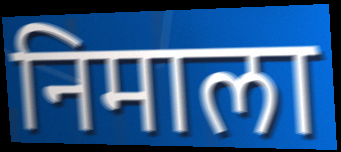
निमाला